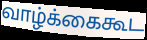
வாழ்க்கைகூட